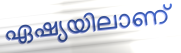
ഏഷ്യയിലാണ്